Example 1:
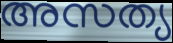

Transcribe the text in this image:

അസത്യ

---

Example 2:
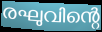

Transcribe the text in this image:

രഘുവിന്റെ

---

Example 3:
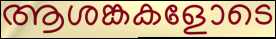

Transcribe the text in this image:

ആശങ്കകളോടെ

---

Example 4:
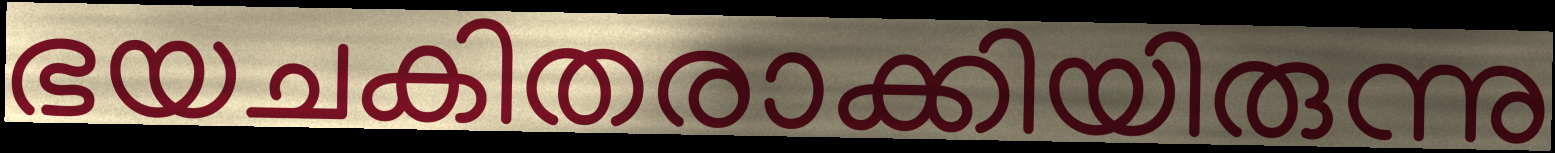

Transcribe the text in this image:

ഭയചകിതരാക്കിയിരുന്നു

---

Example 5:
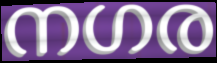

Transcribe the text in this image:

നഗര